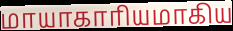
மாயாகாரியமாகிய